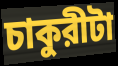
চাকুরীটা